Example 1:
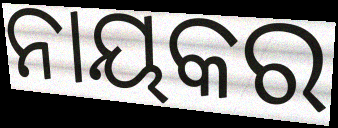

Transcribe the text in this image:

ନାୟକର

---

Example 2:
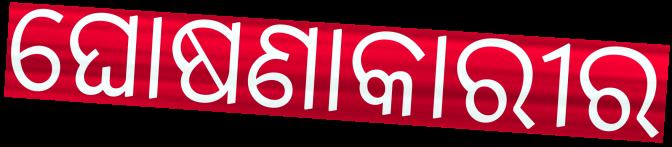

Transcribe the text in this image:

ଘୋଷଣାକାରୀର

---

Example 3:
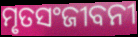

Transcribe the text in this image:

ମୃତସଂଜୀବନୀ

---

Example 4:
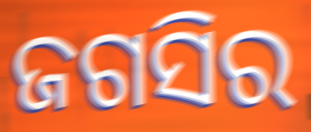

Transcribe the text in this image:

ଜଗସିର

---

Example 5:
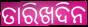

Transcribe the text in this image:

ତାରିଖଦିନ